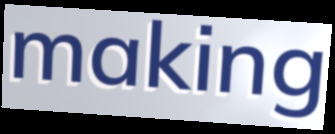
making